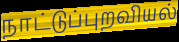
நாட்டுப்புறவியல்